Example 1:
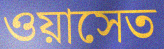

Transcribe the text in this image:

ওয়াসেত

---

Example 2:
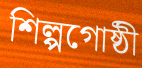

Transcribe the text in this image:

শিল্পগোষ্ঠী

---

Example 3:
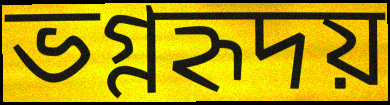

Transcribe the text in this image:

ভগ্নহৃদয়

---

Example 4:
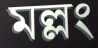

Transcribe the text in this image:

মল্লং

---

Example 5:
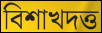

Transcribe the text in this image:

বিশাখদত্ত